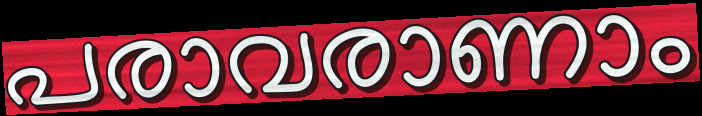
പരാവരാണാം